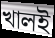
খালই